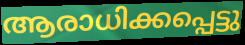
ആരാധിക്കപ്പെട്ടു